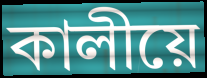
কালীয়ে